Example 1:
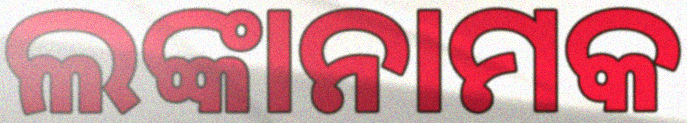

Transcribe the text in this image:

ଲଙ୍କାନାମକ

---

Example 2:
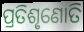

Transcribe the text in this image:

ପ୍ରତିଶୃଣୋତି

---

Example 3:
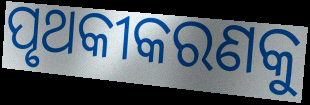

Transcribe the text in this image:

ପୃଥକୀକରଣକୁ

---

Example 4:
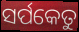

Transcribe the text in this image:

ସର୍ପକେତୁ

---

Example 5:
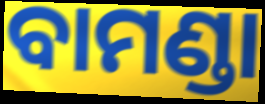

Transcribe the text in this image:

ବାମଣ୍ଡା